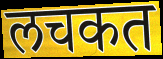
लचकत